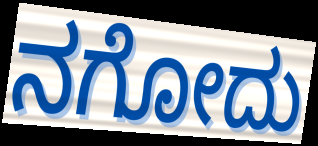
ನಗೋದು